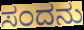
ಸಂದನು